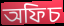
অফিচ